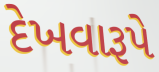
દેખવારૂપે